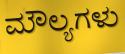
ಮೌಲ್ಯಗಳು